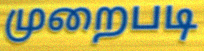
முறைபடி